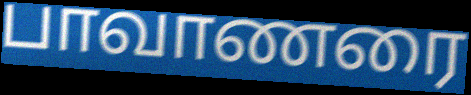
பாவாணரை